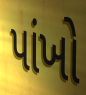
પાંખો